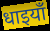
धाइयाँ